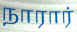
நாரார்